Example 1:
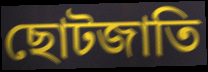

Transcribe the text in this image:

ছোটজাতি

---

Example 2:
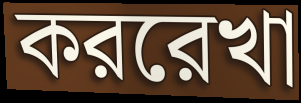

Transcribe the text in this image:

কররেখা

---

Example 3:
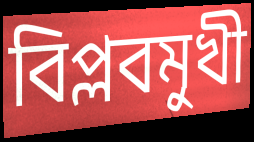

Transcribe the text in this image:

বিপ্লবমুখী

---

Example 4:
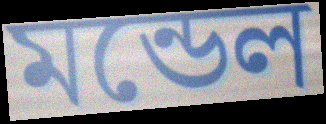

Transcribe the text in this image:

মন্ডেল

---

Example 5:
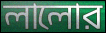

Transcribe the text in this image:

লালোর